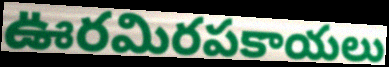
ఊరమిరపకాయలు